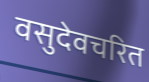
वसुदेवचरित